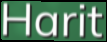
Harit